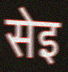
सेइ